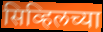
सिव्हिलच्या